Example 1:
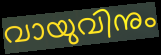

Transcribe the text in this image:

വായുവിനും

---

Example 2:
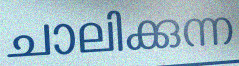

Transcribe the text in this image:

ചാലിക്കുന്ന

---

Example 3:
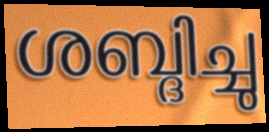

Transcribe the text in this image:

ശബ്ദിച്ചു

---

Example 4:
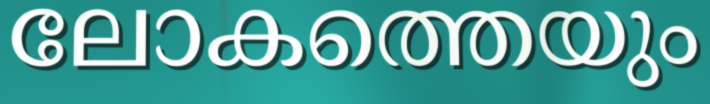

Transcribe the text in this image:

ലോകത്തെയും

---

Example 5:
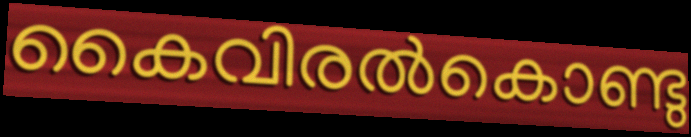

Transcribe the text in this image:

കൈവിരൽകൊണ്ടു